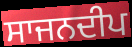
ਸਾਜਨਦੀਪ